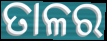
ତାଳର